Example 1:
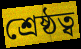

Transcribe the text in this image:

শ্রেষ্ঠত্ব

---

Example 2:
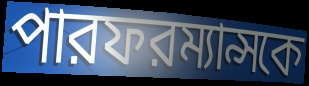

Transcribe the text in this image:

পারফরম্যান্সকে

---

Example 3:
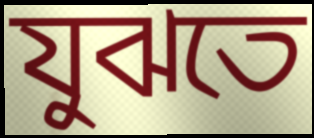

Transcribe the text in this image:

যুঝতে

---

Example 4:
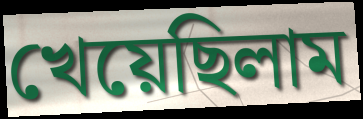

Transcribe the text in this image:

খেয়েছিলাম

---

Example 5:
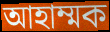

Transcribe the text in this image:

আহাম্মক